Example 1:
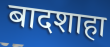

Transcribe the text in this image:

बादशाहा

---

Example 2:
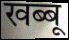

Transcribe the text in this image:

खब्‍बू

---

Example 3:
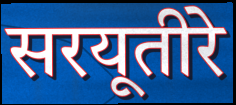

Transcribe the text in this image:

सरयूतीरे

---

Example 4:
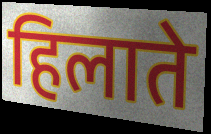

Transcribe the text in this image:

हिलाते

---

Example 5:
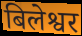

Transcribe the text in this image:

बिलेश्वर